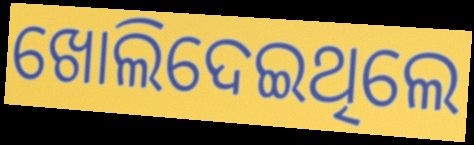
ଖୋଲିଦେଇଥିଲେ